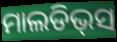
ମାଲଡିଭ୍‌ସ